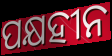
ପକ୍ଷହୀନ